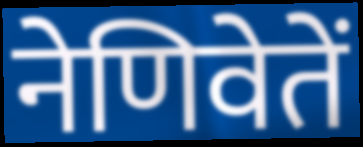
नेणिवेतें